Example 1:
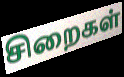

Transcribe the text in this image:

சிறைகள்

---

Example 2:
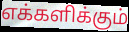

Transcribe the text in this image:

எக்களிக்கும்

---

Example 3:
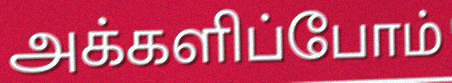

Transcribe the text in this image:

அக்களிப்போம்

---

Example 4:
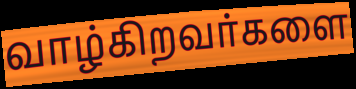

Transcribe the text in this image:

வாழ்கிறவர்களை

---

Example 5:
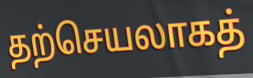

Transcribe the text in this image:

தற்செயலாகத்